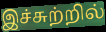
இச்சுற்றில்